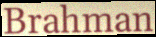
Brahman